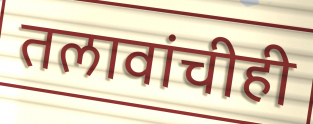
तलावांचीही